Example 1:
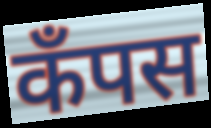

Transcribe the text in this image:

कॅंपस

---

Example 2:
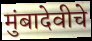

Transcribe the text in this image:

मुंबादेवीचे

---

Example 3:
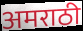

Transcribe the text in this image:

अमराठी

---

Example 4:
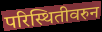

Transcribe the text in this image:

परिस्थितीवरुन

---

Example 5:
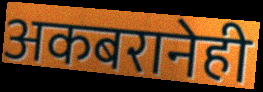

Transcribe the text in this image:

अकबरानेही